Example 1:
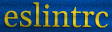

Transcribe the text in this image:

eslintrc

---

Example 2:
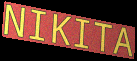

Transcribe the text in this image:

NIKITA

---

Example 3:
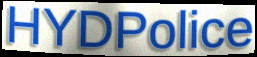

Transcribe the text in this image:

HYDPolice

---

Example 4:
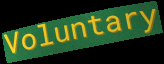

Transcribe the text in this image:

Voluntary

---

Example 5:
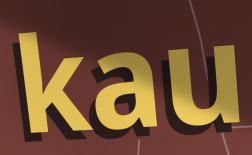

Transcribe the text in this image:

kau